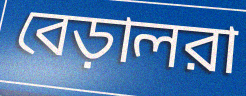
বেড়ালরা